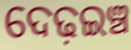
ଦେଢ଼ଇଞ୍ଚ